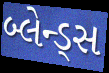
બ્લેન્ડ્સ